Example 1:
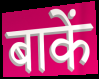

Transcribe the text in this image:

बाकें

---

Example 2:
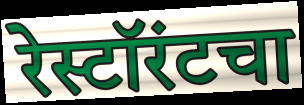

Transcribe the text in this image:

रेस्टॉरंटचा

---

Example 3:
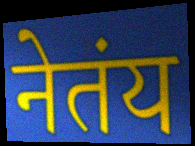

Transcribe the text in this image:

नेतंय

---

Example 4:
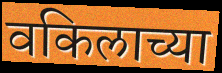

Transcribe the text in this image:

वकिलाच्या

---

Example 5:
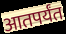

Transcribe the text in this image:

आतपर्यंत